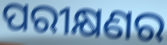
ପରୀକ୍ଷଣର